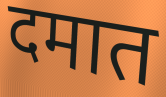
दमात